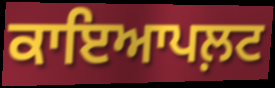
ਕਾਇਆਪਲ਼ਟ